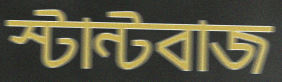
স্টান্টবাজ